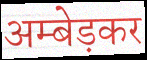
अम्बेड़कर